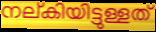
നല്കിയിട്ടുള്ളത്